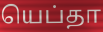
யெப்தா